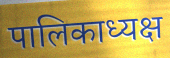
पालिकाध्यक्ष